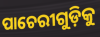
ପାଚେରୀଗୁଡ଼ିକୁ